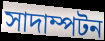
সাদাম্পটন